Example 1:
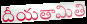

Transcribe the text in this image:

దీయతామితి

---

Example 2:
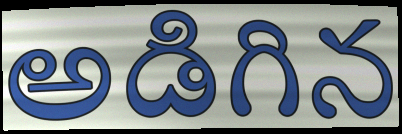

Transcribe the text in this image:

అడిగిన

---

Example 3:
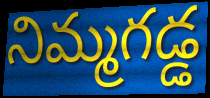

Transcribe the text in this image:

నిమ్మగడ్డ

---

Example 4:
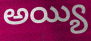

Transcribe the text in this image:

అయ్యి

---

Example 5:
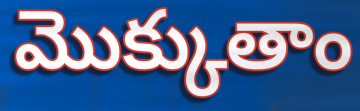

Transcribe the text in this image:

మొక్కుతాం